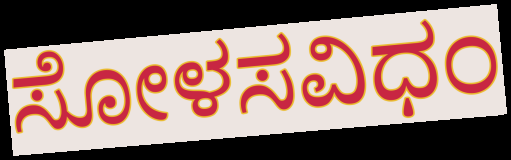
ಸೋಳಸವಿಧಂ